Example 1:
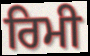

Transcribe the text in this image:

ਰਿਮੀ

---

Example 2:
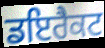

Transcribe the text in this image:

ਡਇਰੈਕਟ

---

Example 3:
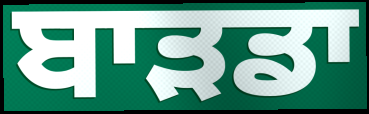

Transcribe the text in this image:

ਬਾੜਡਾ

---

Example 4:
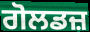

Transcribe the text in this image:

ਗੋਲਡਜ਼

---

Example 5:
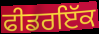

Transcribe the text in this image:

ਫੀਡਰਇੱਕ